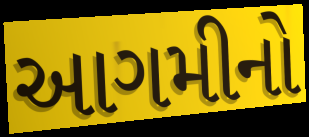
આગમીનો